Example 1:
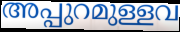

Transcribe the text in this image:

അപ്പുറമുള്ളവ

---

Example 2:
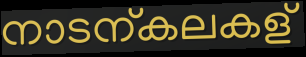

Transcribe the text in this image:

നാടന്കലകള്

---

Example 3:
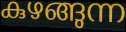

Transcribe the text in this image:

കുഴങ്ങുന്ന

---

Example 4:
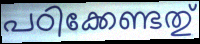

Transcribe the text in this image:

പഠിക്കേണ്ടതു്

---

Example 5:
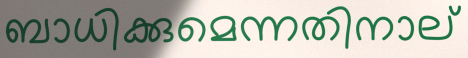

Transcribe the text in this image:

ബാധിക്കുമെന്നതിനാല്